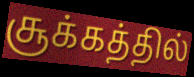
சூக்கத்தில்